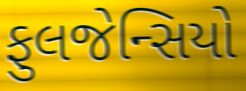
ફુલજેન્સિયો